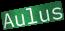
Aulus